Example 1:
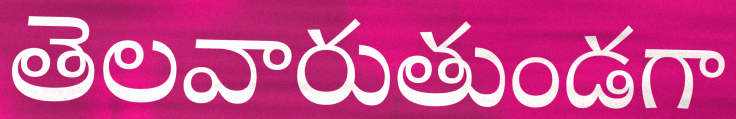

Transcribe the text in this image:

తెలవారుతుండగా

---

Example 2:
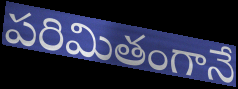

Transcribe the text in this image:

పరిమితంగానే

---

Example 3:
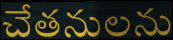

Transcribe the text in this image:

చేతనులను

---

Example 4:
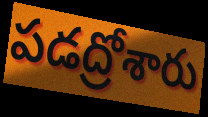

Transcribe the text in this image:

పడద్రోశారు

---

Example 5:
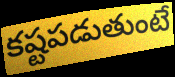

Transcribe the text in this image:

కష్టపడుతుంటే